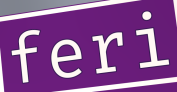
feri